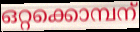
ഒറ്റക്കൊമ്പന്